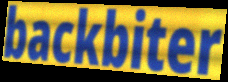
backbiter